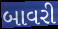
બાવરી